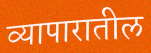
व्यापारातील